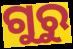
ଗୁରୁ